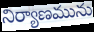
నిర్యాణమును